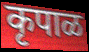
कृपाळ